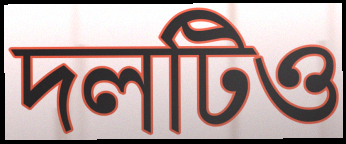
দলটিও